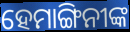
ହେମାଙ୍ଗିନୀଙ୍କ